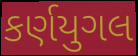
કર્ણયુગલ